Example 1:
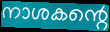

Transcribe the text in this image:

നാശകന്റെ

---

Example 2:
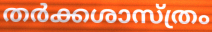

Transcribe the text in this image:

തർക്കശാസ്ത്രം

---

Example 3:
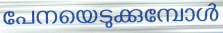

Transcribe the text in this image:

പേനയെടുക്കുമ്പോൾ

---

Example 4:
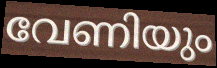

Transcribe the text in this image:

വേണിയും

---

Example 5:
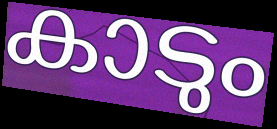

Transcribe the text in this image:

കാടും